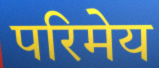
परिमेय